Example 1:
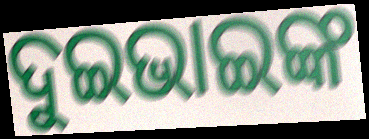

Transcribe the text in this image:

ଦୁଇଭାଇଙ୍କ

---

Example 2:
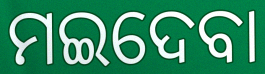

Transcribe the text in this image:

ମଇଦେବା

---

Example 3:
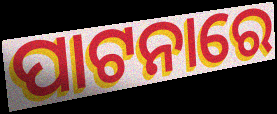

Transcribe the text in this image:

ପାଟନାରେ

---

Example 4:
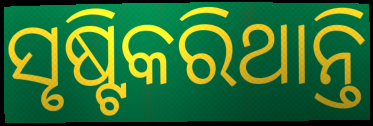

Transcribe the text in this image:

ସୃଷ୍ଟିକରିଥାନ୍ତି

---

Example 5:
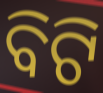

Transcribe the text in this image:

ବିଟି